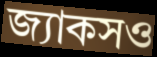
জ্যাকসও